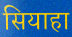
सियाहा